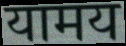
यामय